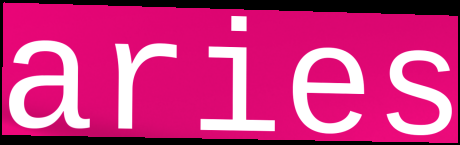
aries